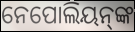
ନେପୋଲିୟନ୍‍ଙ୍କ